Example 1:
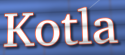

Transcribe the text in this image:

Kotla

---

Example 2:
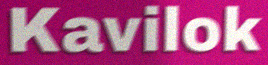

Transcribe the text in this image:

Kavilok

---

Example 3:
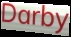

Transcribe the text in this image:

Darby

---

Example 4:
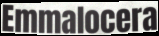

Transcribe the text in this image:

Emmalocera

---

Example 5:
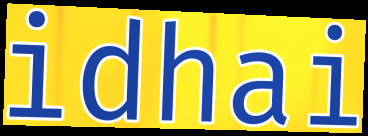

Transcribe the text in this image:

idhai